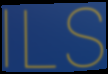
ILS